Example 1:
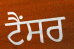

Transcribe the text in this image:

ਟੈਂਸਰ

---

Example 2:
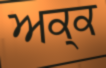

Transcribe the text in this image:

ਅਕ੍ਕ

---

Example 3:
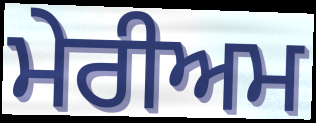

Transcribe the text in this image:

ਮੇਰੀਅਮ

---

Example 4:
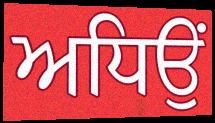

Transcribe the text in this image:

ਅਧਿਉਂ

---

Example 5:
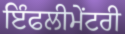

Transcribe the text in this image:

ਇੰਫਲੀਮੇਂਟਰੀ